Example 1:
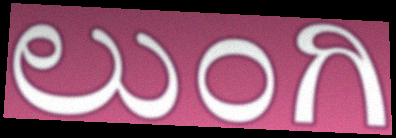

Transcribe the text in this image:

ಲುಂಗಿ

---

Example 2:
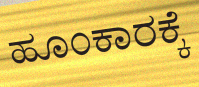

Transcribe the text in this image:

ಹೂಂಕಾರಕ್ಕೆ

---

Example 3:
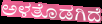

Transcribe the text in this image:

ಅಳತೊಡಗಿದೆ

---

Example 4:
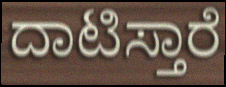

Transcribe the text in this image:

ದಾಟಿಸ್ತಾರೆ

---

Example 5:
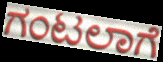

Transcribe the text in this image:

ಗಂಟಲಾಗೆ